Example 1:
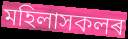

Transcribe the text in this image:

মহিলাসকলৰ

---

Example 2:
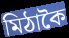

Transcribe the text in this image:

মিঠাকৈ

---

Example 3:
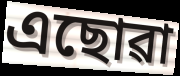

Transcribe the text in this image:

এছোৱা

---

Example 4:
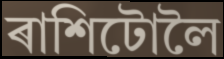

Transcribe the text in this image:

ৰাশিটোলৈ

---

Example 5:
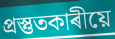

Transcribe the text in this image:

প্ৰস্তুতকাৰীয়ে